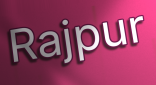
Rajpur